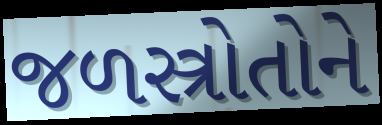
જળસ્ત્રોતોને